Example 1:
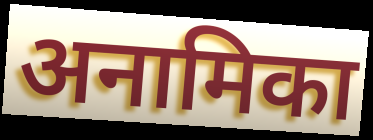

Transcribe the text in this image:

अनामिका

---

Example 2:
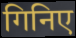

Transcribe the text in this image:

गिनिए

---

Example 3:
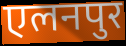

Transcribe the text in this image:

एलनपुर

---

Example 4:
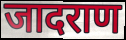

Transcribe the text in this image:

जादराण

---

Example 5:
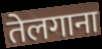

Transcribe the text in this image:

तेलगाना